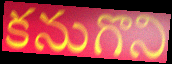
కనుగొని